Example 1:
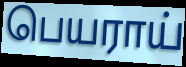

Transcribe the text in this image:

பெயராய்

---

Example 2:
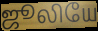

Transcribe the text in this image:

ஜூலியே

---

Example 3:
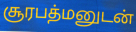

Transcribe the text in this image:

சூரபத்மனுடன்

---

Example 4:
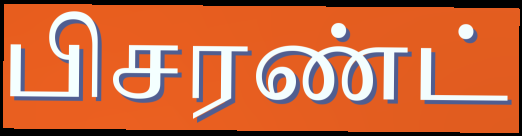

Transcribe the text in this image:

பிசரண்ட்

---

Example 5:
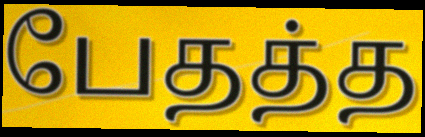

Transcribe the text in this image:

பேதத்த